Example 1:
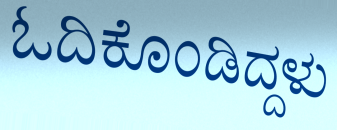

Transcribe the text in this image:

ಓದಿಕೊಂಡಿದ್ದಳು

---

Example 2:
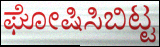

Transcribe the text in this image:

ಘೋಷಿಸಿಬಿಟ್ಟ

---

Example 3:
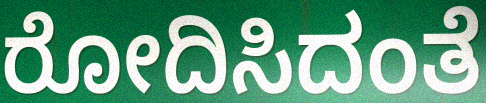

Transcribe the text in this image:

ರೋದಿಸಿದಂತೆ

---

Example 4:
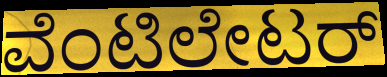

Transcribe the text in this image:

ವೆಂಟಿಲೇಟರ್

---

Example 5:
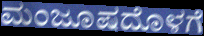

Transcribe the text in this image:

ಮಂಜೂಷದೊಳಗೆ